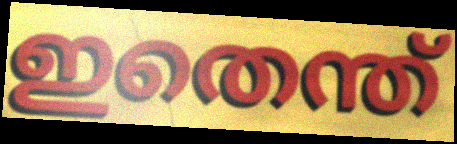
ഇതെന്ത്